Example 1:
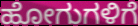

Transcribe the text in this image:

ಹೋಗುಗಳಿಗೆ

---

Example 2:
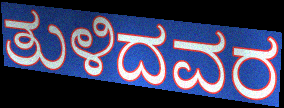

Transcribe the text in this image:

ತುಳಿದವರ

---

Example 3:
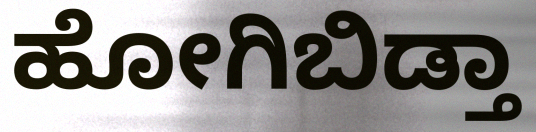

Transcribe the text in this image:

ಹೋಗಿಬಿಡ್ತಾ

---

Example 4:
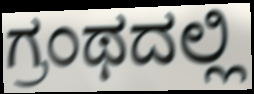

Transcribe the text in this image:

ಗ್ರಂಥದಲ್ಲಿ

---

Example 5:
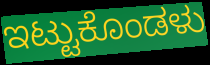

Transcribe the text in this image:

ಇಟ್ಟುಕೊಂಡಳು